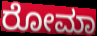
ರೋಮಾ